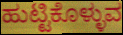
ಹುಟ್ಟಿಕೊಳ್ಳುವ